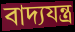
বাদ্যযন্ত্র